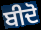
ਬੀਦੋ